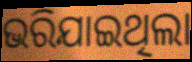
ଭରିଯାଇଥିଲା